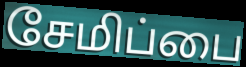
சேமிப்பை